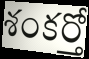
శంకర్తో